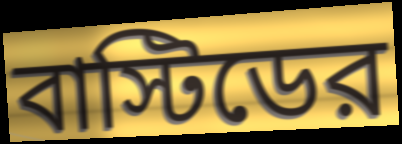
বাস্টিডের